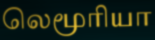
லெமூரியா